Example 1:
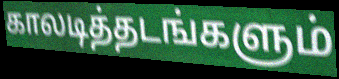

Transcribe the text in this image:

காலடித்தடங்களும்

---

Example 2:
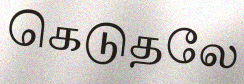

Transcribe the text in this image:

கெடுதலே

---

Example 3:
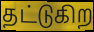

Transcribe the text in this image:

தட்டுகிற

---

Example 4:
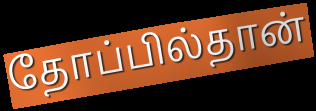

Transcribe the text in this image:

தோப்பில்தான்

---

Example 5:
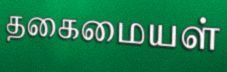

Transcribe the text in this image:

தகைமையள்